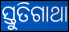
ସ୍ତୁତିଗାଥା